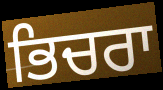
ਭਿਚਰਾ